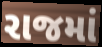
રાજમાં